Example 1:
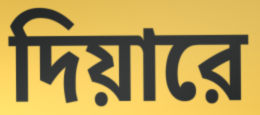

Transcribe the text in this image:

দিয়ারে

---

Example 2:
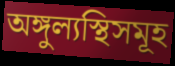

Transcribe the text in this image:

অঙ্গুল্যস্থিসমূহ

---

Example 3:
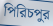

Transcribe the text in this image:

পিরিচপুর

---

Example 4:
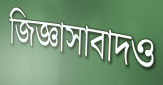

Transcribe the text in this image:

জিজ্ঞাসাবাদও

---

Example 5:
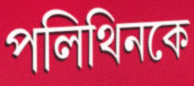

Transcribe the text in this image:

পলিথিনকে